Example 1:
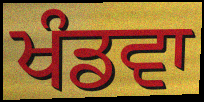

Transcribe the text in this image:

ਖੰਡਵਾ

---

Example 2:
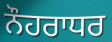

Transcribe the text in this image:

ਨੌਹਰਾਧਰ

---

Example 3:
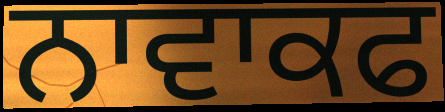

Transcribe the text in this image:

ਨਾਵਾਕਫ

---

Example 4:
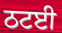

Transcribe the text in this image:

ਠਟਈ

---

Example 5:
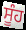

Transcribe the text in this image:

ਸੂੰਹ